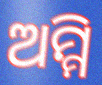
ଅମ୍ମି